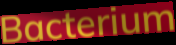
Bacterium